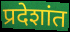
प्रदेशांत